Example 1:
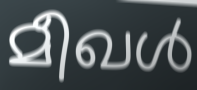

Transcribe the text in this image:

മീഖൾ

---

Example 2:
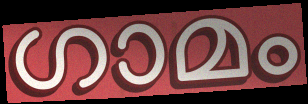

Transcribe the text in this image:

ഗാമം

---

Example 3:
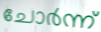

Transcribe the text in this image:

ചോർന്ന്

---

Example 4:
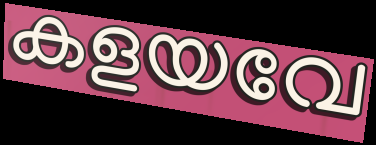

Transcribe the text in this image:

കളയവേ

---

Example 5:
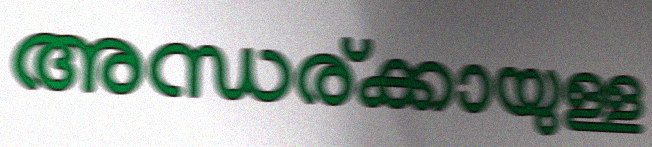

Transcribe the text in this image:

അന്ധര്ക്കായുള്ള